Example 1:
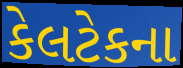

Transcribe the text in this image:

કેલટેકના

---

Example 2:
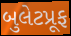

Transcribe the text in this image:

બુલેટપ્રૂફ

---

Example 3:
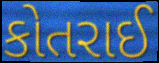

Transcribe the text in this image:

કોતરાઈ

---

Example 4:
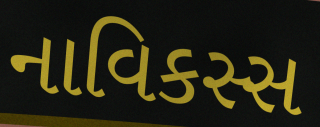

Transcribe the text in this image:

નાવિકસ્સ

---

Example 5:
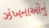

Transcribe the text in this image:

ઝંખનાઓનું